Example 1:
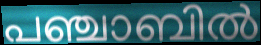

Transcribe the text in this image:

പഞ്ചാബിൽ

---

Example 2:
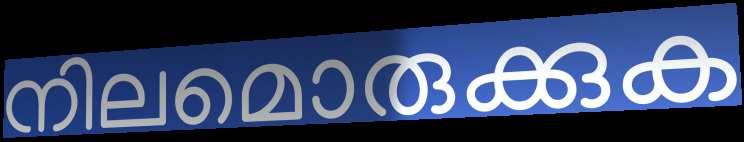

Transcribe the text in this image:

നിലമൊരുക്കുക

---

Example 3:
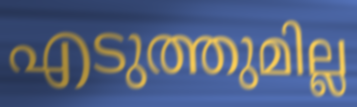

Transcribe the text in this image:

എടുത്തുമില്ല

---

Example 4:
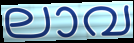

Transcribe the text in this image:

ലാവ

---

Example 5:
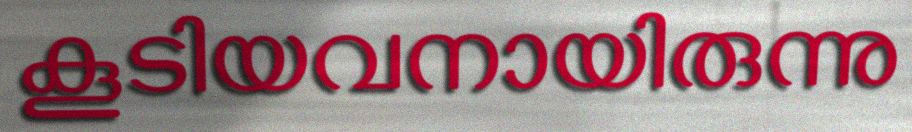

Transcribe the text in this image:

കൂടിയവനായിരുന്നു